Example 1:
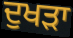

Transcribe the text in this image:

ਦੁਖੜਾ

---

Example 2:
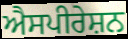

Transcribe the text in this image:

ਐਸਪੀਰੇਸ਼ਨ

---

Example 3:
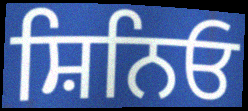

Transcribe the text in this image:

ਸ਼ਿਨਿਓ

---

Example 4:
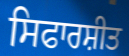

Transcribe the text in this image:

ਸਿਫਾਰਸ਼ੀਤ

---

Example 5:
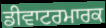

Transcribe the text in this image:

ਡੀਵਾਟਰਮਾਰਕ